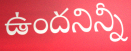
ఉందనిన్నీ